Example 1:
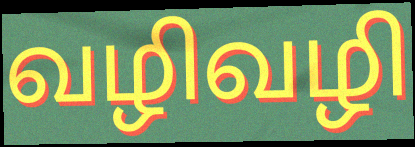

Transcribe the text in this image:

வழிவழி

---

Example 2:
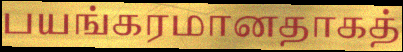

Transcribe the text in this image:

பயங்கரமானதாகத்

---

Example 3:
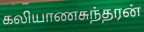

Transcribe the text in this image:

கலியாணசுந்தரன்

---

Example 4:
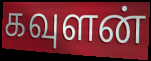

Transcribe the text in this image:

கவுளன்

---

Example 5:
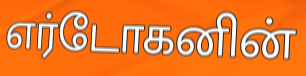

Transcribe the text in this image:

எர்டோகனின்